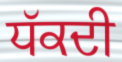
ਧੱਕਦੀ